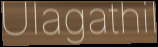
Ulagathil